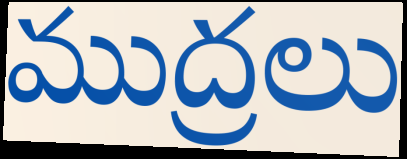
ముద్రలు